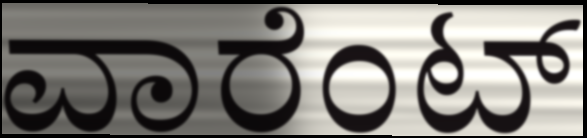
ವಾರೆಂಟ್